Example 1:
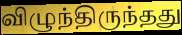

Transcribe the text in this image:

விழுந்திருந்தது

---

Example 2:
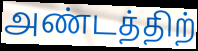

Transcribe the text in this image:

அண்டத்திற்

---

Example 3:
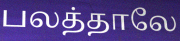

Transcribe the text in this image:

பலத்தாலே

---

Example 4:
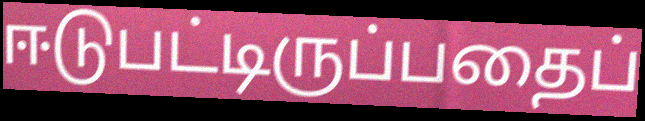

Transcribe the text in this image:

ஈடுபட்டிருப்பதைப்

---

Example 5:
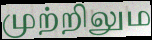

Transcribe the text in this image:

முற்றிலும